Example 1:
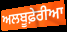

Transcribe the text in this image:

ਅਲਬੂਫ਼ੇਰੀਆ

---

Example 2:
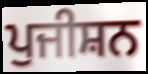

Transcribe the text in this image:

ਪੁਜੀਸ਼ਨ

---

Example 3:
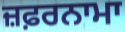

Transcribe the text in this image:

ਜ਼ਫ਼ਰਨਾਮਾ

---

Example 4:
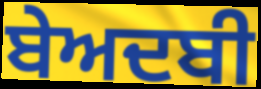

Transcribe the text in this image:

ਬੇਅਦਬੀ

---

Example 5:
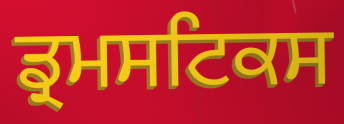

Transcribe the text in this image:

ਡ੍ਰਮਸਟਿਕਸ